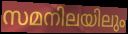
സമനിലയിലും